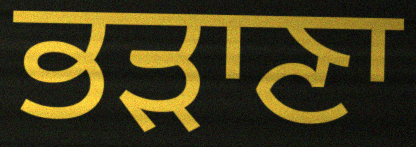
ਭੜਾਣਾ